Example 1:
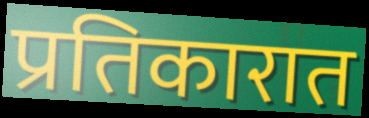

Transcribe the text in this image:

प्रतिकारात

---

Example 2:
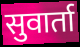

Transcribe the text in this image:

सुवार्ता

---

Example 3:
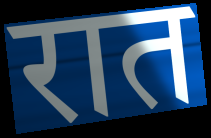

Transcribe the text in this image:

रात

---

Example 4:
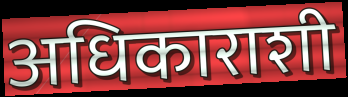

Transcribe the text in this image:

अधिकाराशी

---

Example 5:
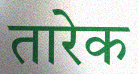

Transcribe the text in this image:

तारेक